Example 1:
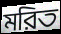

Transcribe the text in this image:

মরিত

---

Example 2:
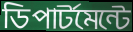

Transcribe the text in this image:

ডিপার্টমেন্টে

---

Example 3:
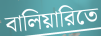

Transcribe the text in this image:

বালিয়ারিতে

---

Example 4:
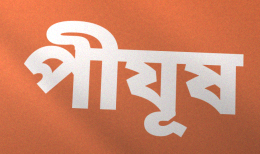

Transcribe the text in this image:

পীযূষ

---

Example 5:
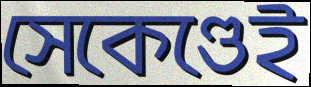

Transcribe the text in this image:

সেকেণ্ডেই